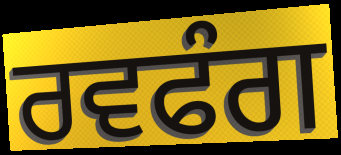
ਰਵਫੰਗ